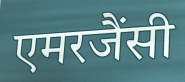
एमरजैंसी